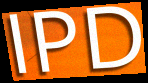
IPD